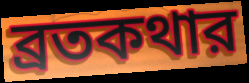
ব্রতকথার